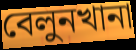
বেলুনখানা